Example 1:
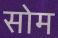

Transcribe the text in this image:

सोम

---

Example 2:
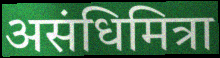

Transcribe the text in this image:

असंधिमित्रा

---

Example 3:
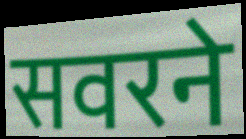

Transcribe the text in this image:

सवरने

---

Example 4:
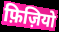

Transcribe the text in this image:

फ़िज़ियो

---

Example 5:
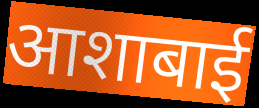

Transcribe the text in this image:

आशाबाई